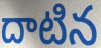
దాటిన